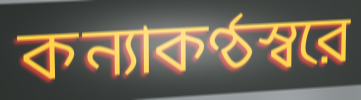
কন্যাকণ্ঠস্বরে